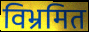
विभ्रमित